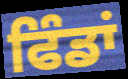
ਫਿੰਡਾਂ